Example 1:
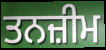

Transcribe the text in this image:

ਤਨਜ਼ੀਮ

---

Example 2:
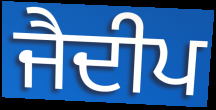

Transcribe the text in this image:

ਜੈਦੀਪ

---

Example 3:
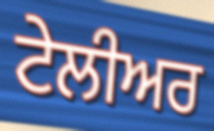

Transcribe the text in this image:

ਟੇਲੀਅਰ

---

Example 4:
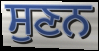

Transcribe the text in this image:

ਸੁਣਨ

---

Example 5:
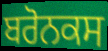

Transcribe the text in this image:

ਬਰੋਨਕਸ